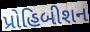
પ્રોહિબીશન